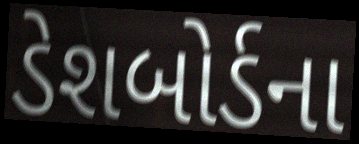
ડેશબોર્ડના